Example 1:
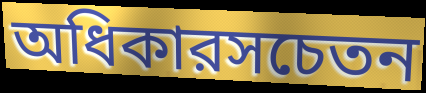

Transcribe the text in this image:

অধিকারসচেতন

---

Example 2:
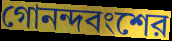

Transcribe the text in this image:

গোনন্দবংশের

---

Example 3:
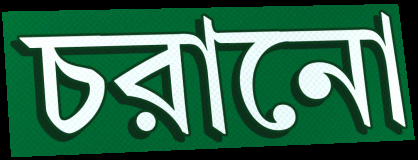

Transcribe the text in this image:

চরানো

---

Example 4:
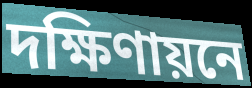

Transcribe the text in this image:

দক্ষিণায়নে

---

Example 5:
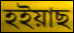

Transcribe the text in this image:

হইয়াছ